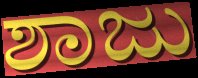
ಶಾಜು